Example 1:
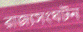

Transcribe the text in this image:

রাজ্যসংঘটন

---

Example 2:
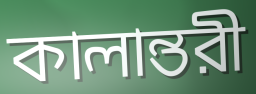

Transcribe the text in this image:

কালান্তরী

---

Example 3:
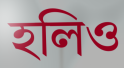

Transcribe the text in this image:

হলিও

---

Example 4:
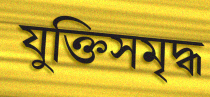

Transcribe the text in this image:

যুক্তিসমৃদ্ধ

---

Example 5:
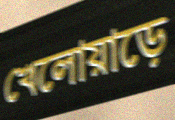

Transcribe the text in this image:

খেলোয়াড়ে